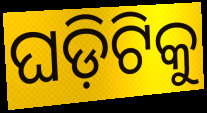
ଘଡ଼ିଟିକୁ